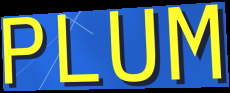
PLUM